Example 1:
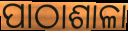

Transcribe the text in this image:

ପାଠାଶାଳା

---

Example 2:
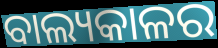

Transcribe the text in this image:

ବାଲ୍ୟକାଳର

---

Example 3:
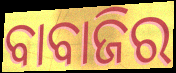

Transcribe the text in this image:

ବାବାଜିର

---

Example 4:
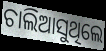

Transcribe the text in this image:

ଚାଲିଆସୁଥିଲେ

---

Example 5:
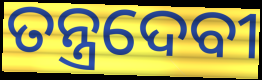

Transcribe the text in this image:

ତନ୍ତ୍ରଦେବୀ